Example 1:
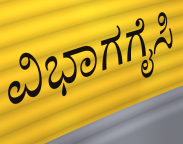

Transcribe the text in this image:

ವಿಭಾಗಗೈಸಿ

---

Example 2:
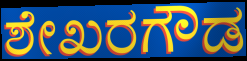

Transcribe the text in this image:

ಶೇಖರಗೌಡ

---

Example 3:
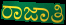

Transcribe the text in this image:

ರಾಜಾತಿ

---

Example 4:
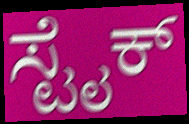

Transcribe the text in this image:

ಸ್ಟೈಕ್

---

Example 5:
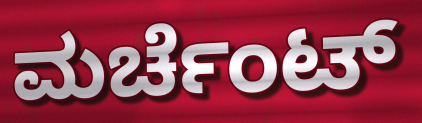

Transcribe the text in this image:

ಮರ್ಚೆಂಟ್